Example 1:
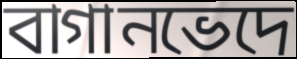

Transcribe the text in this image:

বাগানভেদে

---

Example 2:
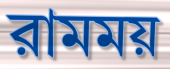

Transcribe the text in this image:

রামময়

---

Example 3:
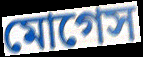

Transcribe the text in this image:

মোগেস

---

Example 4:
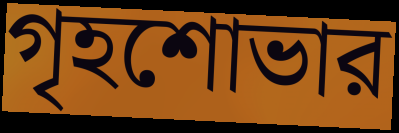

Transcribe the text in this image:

গৃহশোভার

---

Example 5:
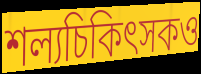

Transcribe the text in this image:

শল্যচিকিৎসকও